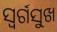
ସ୍ୱର୍ଗସୁଖ